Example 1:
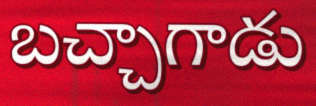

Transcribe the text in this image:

బచ్చాగాడు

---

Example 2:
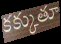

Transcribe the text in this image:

కక్కుతూ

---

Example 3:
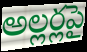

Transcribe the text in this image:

అల్లర్లపై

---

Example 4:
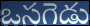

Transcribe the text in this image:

ఒసగెడు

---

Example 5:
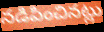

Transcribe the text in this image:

నడిపించినట్లు